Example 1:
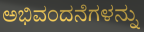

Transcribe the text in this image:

ಅಭಿವಂದನೆಗಳನ್ನು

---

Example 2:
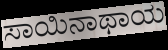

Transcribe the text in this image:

ಸಾಯಿನಾಥಾಯ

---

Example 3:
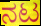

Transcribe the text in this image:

ನಟ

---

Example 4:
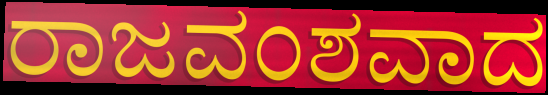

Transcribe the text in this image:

ರಾಜವಂಶವಾದ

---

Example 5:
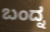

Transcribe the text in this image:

ಬಂದ್ನ